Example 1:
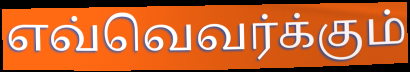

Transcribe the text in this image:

எவ்வெவர்க்கும்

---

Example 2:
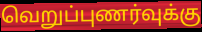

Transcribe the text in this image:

வெறுப்புணர்வுக்கு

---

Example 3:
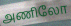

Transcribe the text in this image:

அணிலோ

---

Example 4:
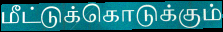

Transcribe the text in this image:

மீட்டுக்கொடுக்கும்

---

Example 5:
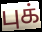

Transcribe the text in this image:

புக்